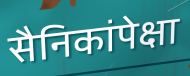
सैनिकांपेक्षा